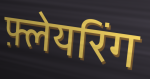
फ़्लेयरिंग